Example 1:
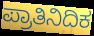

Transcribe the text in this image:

ಪ್ರಾತಿನಿದಿಕ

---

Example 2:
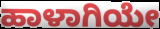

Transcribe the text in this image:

ಹಾಳಾಗಿಯೇ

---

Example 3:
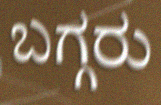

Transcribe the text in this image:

ಬಗ್ಗರು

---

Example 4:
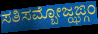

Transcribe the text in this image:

ಸತಿಸಮ್ಬೋಜ್ಝಙ್ಗಂ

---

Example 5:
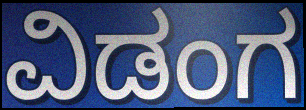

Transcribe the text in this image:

ವಿಡಂಗ